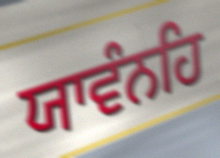
ਯਾਵੰਨਹਿ